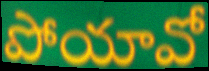
పోయావో